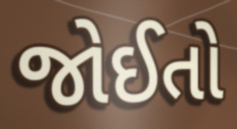
જોઈતો